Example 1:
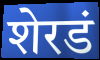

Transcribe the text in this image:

शेरडं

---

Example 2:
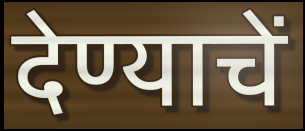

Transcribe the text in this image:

देण्याचें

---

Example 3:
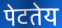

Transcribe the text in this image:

पेटतेय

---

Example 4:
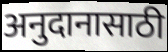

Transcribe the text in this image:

अनुदानासाठी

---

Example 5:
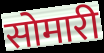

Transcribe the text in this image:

सोमारी